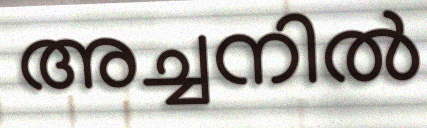
അച്ചനിൽ